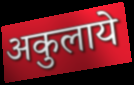
अकुलाये